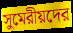
সুমেরীয়দের